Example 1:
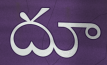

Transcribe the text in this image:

దూ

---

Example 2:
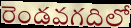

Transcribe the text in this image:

రెండవగదిలో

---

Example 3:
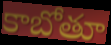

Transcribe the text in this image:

కాబోతూ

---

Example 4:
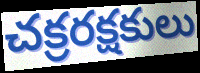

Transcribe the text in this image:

చక్రరక్షకులు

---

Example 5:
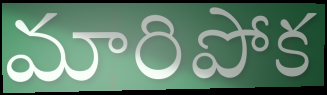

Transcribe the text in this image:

మారిపోక